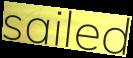
sailed